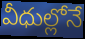
వీధుల్లోనే